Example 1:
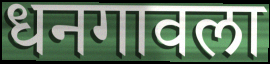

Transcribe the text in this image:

धनगावला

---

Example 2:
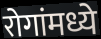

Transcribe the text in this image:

रोगांमध्ये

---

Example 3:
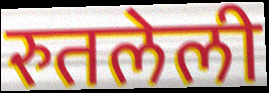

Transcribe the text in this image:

रुतलेली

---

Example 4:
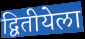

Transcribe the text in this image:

द्वितीयेला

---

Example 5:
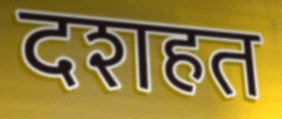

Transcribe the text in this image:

दशहत